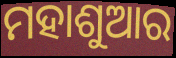
ମହାଶୁଆର